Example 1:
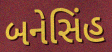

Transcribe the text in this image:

બનેસિંહ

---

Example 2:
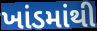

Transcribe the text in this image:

ખાંડમાંથી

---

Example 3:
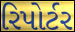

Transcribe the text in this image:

રિપોર્ટર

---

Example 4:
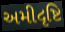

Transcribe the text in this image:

અમીદૃષ્ટિ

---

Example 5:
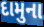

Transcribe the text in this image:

દામુના